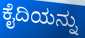
ಕೈದಿಯನ್ನು